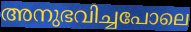
അനുഭവിച്ചപോലെ